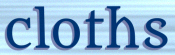
cloths